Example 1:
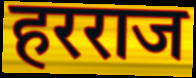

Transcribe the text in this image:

हरराज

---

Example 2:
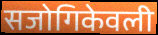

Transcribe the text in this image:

सजोगिकेवली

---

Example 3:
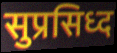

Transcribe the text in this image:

सुप्रसिध्द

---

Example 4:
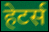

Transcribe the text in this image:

हेटर्स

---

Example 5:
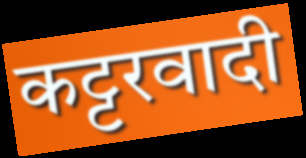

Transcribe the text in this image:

कट्टरवादी